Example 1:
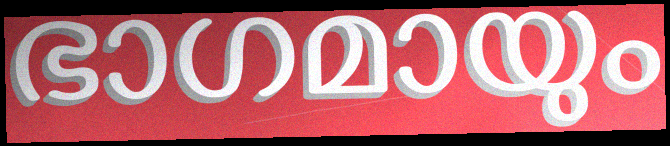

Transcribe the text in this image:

ഭാഗമായും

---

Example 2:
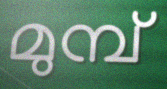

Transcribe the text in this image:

മുമ്പ്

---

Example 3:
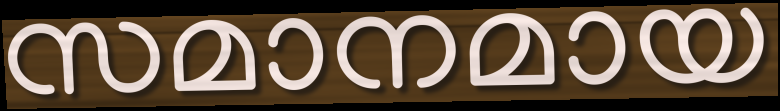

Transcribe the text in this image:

സമാനമായ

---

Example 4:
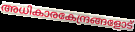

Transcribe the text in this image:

അധികാരകേന്ദ്രങ്ങളോട്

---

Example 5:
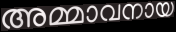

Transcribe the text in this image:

അമ്മാവനായ